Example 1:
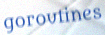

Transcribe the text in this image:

goroutines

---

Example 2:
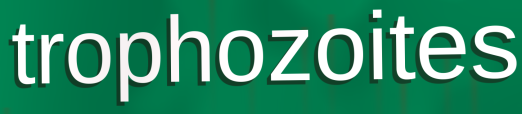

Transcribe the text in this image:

trophozoites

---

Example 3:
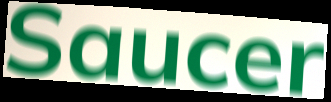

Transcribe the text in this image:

Saucer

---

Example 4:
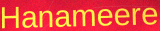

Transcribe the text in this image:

Hanameere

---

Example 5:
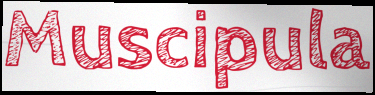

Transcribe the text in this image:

Muscipula